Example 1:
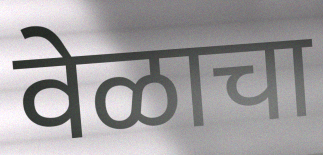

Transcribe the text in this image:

वेळाचा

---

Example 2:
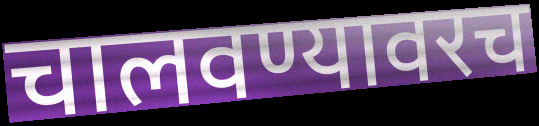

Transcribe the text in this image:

चालवण्यावरच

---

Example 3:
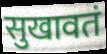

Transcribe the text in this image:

सुखावतं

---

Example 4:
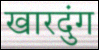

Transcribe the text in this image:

खारदुंग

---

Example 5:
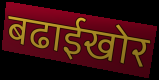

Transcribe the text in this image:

बढाईखोर